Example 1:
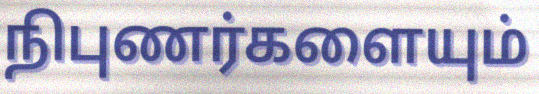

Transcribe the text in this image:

நிபுணர்களையும்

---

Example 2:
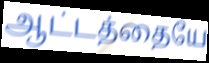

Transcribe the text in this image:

ஆட்டத்தையே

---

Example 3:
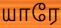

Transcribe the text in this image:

யாரே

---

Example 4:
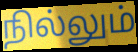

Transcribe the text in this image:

நில்லும்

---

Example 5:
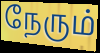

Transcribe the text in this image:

நேரும்